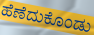
ಹೆಣೆದುಕೊಂಡು